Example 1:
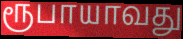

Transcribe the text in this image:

ரூபாயாவது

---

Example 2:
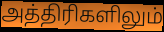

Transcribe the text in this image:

அத்திரிகளிலும்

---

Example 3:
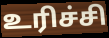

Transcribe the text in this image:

உரிச்சி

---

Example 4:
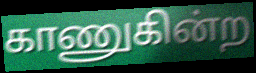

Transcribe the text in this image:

காணுகின்ற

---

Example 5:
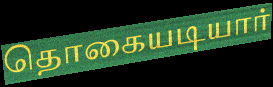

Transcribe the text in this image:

தொகையடியார்